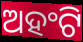
ଅହଂଟି